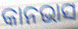
କାନଭାସ